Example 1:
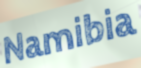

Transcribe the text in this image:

Namibia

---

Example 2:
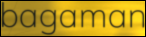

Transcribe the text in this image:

bagaman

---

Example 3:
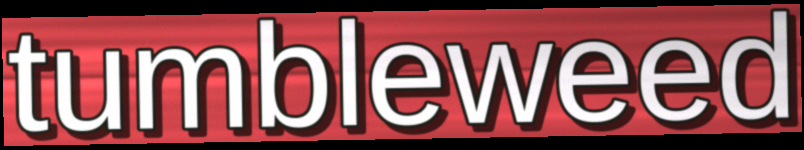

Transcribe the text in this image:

tumbleweed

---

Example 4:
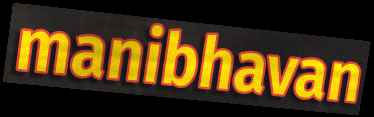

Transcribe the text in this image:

manibhavan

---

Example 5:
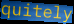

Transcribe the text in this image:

quitely